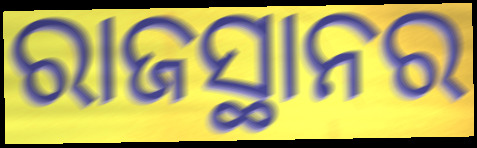
ରାଜସ୍ଥାନର